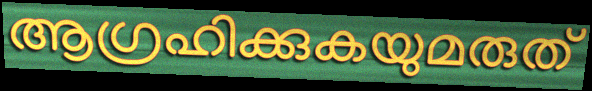
ആഗ്രഹിക്കുകയുമരുത്